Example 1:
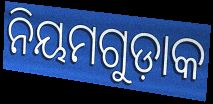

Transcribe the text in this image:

ନିୟମଗୁଡ଼ାକ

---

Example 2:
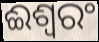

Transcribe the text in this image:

ଈଶ୍ୱରଂ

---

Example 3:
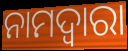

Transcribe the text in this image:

ନାମଦ୍ଵାରା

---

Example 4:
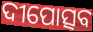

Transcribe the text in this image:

ଦୀପୋତ୍ସବ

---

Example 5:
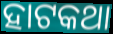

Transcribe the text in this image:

ହାଟକଥା